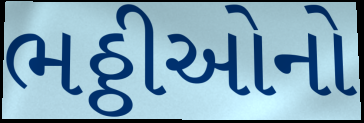
ભઠ્ઠીઓનો